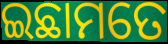
ଇଛାମତେ